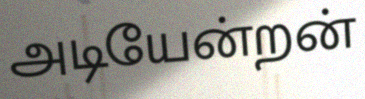
அடியேன்றன்